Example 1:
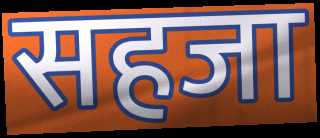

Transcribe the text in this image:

सहजा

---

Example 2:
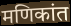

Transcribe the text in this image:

मणिकांत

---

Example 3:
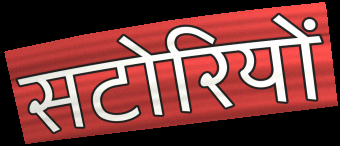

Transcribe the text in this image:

सटोरियों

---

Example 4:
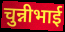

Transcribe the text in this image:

चुन्नीभाई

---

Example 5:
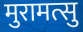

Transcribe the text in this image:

मुरामत्सु